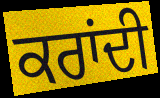
ਕਰਾਂਦੀ